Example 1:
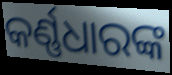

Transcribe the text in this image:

କର୍ଣ୍ଣଧାରଙ୍କ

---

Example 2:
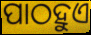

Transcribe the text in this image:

ପାଠହୁଏ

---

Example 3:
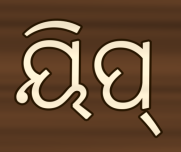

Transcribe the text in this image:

ୟିପ୍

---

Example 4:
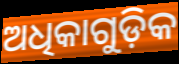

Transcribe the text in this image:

ଅଧିକାଗୁଡ଼ିକ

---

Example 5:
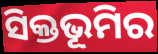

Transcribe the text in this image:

ସିକ୍ତଭୂମିର